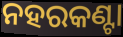
ନହରକଣ୍ଟା